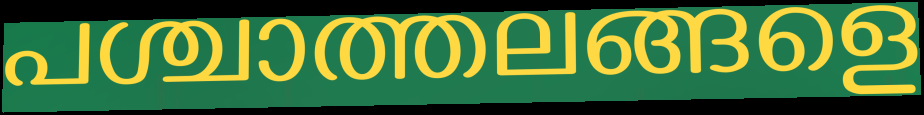
പശ്ചാത്തലങ്ങളെ